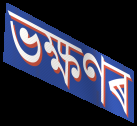
ভক্ষণৰ